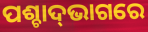
ପଶ୍ଚାଦ୍‍ଭାଗରେ